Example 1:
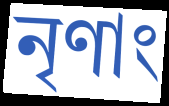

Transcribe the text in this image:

নৃণাং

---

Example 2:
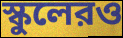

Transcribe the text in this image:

স্কুলেরও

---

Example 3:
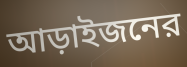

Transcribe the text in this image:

আড়াইজনের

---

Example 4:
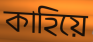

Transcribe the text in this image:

কাহিয়ে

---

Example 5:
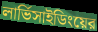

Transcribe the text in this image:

লার্ভিসাইডিংয়ের